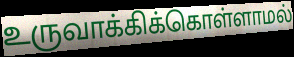
உருவாக்கிக்கொள்ளாமல்